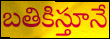
బతికిస్తూనే